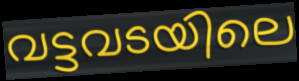
വട്ടവടയിലെ